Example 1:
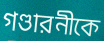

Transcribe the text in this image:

গণ্ডারনীকে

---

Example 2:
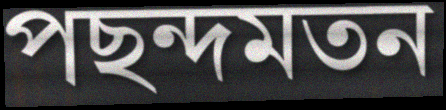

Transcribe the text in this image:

পছন্দমতন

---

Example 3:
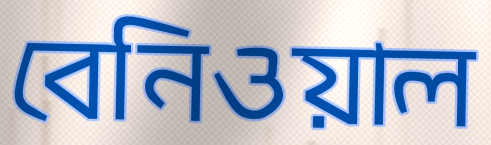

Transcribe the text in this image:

বেনিওয়াল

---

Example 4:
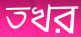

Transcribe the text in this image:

তখর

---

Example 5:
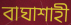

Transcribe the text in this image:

বাঘাশাহী